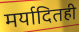
मर्यादितही